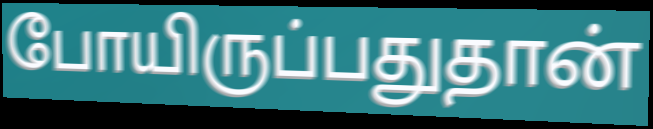
போயிருப்பதுதான்